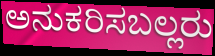
ಅನುಕರಿಸಬಲ್ಲರು